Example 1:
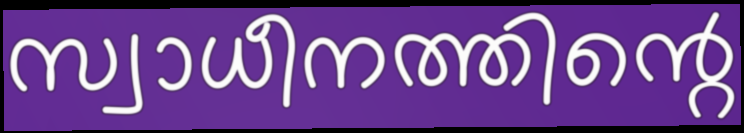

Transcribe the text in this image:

സ്വാധീനത്തിന്റെ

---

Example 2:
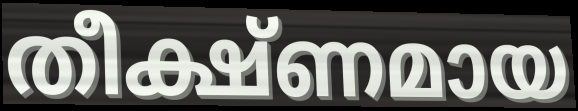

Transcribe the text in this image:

തീക്ഷ്ണമായ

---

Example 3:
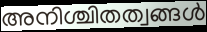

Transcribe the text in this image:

അനിശ്ചിതത്വങ്ങൾ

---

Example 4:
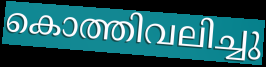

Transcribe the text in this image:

കൊത്തിവലിച്ചു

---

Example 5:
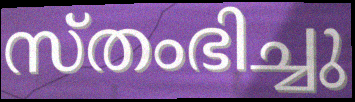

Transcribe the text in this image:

സ്തംഭിച്ചു